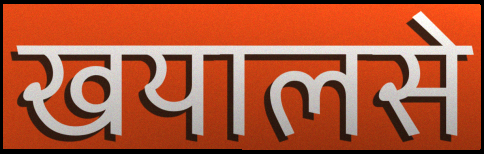
खयालसे